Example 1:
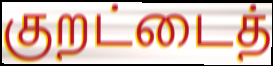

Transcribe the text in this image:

குறட்டைத்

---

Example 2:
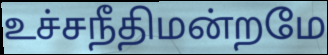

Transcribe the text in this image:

உச்சநீதிமன்றமே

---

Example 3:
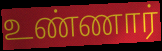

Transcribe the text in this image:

உண்ணார்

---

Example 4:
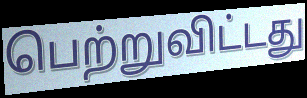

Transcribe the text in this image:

பெற்றுவிட்டது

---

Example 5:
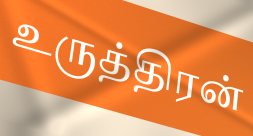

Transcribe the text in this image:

உருத்திரன்